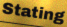
Stating